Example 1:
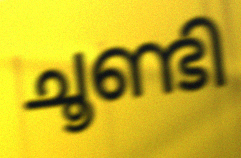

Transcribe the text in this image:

ചൂണ്ടി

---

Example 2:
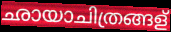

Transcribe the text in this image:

ഛായാചിത്രങ്ങള്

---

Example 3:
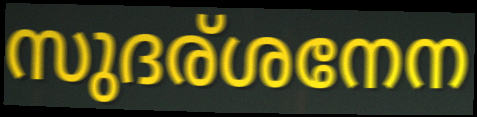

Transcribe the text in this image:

സുദര്ശനേന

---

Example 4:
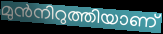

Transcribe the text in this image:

മുൻനിറുത്തിയാണ്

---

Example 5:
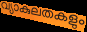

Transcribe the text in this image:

വ്യാകുലതകളും